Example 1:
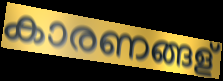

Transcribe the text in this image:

കാരണങ്ങള്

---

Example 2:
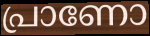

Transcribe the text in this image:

പ്രാണോ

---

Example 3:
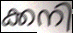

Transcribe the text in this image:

ക്കനി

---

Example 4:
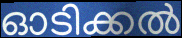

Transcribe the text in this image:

ഓടിക്കൽ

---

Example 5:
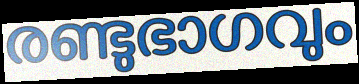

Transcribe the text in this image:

രണ്ടുഭാഗവും